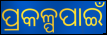
ପ୍ରକଳ୍ପପାଇଁ